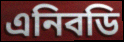
এনিবডি